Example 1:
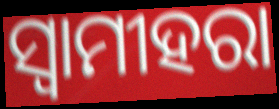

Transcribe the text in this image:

ସ୍ଵାମୀହରା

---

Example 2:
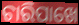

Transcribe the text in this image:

ଚାରିପାଖେ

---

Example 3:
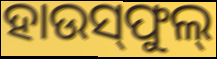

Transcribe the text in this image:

ହାଉସ୍‌ଫୁଲ୍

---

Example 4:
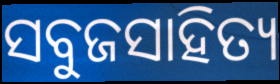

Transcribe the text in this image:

ସବୁଜସାହିତ୍ୟ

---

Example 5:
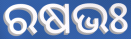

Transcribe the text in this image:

ରଷଭଃ